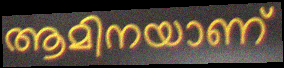
ആമിനയാണ്